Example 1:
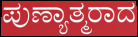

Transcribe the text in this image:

ಪುಣ್ಯಾತ್ಮರಾದ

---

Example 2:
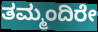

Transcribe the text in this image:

ತಮ್ಮಂದಿರೇ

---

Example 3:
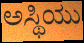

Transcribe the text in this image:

ಅಸ್ಥಿಯು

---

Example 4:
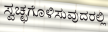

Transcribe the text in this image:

ಸ್ವಚ್ಛಗೊಳಿಸುವುದರಲ್ಲಿ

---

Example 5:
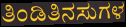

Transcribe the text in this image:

ತಿಂಡಿತಿನಸುಗಳ